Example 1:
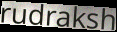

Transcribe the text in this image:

rudraksh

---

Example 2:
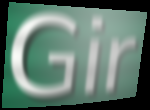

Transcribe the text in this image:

Gir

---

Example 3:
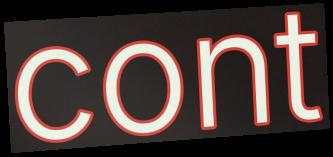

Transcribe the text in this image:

cont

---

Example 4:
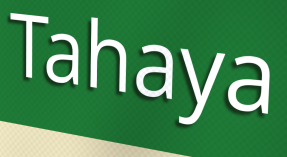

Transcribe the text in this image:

Tahaya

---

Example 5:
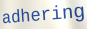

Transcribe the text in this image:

adhering